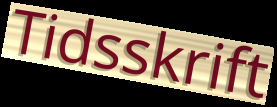
Tidsskrift